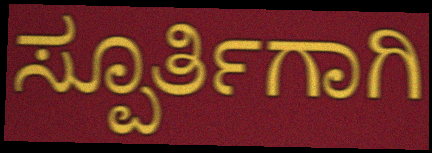
ಸ್ಪೂರ್ತಿಗಾಗಿ